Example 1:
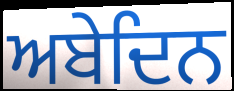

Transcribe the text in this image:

ਅਬੇਦਿਨ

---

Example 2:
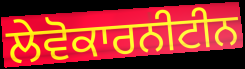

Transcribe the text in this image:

ਲੇਵੋਕਾਰਨੀਟੀਨ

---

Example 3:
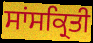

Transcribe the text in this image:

ਸਾਂਸਕ੍ਰਿਤੀ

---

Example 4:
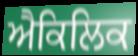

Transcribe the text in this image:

ਐਕਿਲਿਕ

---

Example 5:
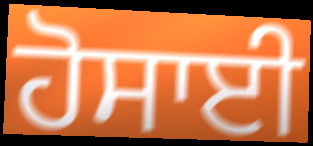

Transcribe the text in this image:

ਹੋਸਾਈ